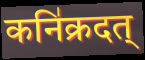
कनि॑क्रदत्